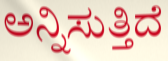
ಅನ್ನಿಸುತ್ತಿದೆ